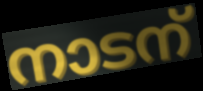
നാടന്